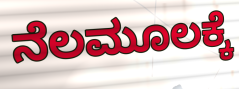
ನೆಲಮೂಲಕ್ಕೆ